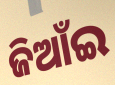
ଜିଆଁଇ